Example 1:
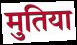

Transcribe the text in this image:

मुतिया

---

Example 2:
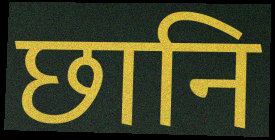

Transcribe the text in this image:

छानि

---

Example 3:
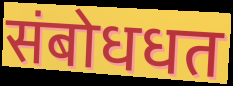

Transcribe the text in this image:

संबोधधत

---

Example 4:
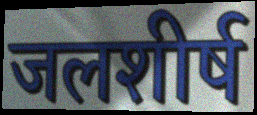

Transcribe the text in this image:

जलशीर्ष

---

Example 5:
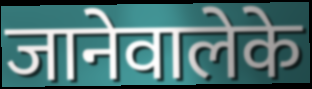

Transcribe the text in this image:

जानेवालेके